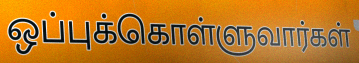
ஒப்புக்கொள்ளுவார்கள்